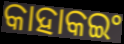
କାହାକଇଂ